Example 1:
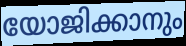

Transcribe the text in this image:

യോജിക്കാനും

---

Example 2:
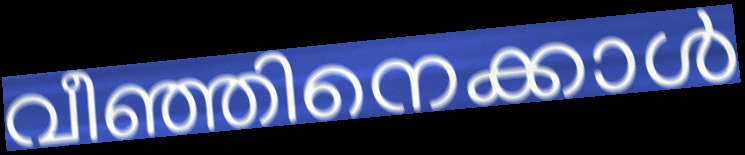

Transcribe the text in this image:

വീഞ്ഞിനെക്കാൾ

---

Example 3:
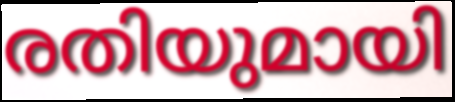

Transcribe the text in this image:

രതിയുമായി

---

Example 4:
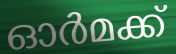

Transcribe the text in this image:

ഓർമക്ക്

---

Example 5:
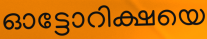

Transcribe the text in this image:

ഓട്ടോറിക്ഷയെ